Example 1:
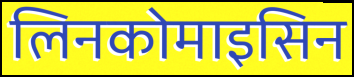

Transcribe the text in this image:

लिनकोमाइसिन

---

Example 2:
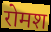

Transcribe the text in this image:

रोमश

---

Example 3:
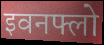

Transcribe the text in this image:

इवनफ्लो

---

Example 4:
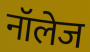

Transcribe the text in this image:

नॉलेज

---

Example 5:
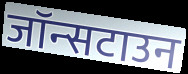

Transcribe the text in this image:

जॉन्सटाउन